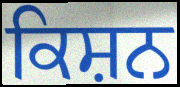
ਕਿਸ਼ਨ